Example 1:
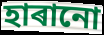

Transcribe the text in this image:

হাৰানো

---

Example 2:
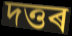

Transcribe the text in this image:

দত্তৰ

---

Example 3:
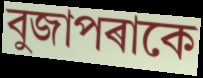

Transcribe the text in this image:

বুজাপৰাকে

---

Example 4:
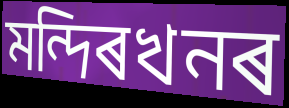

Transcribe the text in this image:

মন্দিৰখনৰ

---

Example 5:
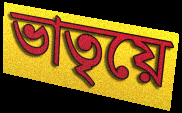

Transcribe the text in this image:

ভাতৃয়ে